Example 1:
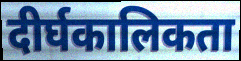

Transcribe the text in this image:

दीर्घकालिकता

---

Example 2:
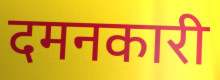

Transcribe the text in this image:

दमनकारी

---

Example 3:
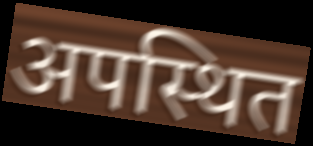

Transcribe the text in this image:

अपस्थित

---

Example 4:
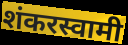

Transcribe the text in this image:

शंकरस्वामी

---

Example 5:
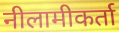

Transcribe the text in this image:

नीलामीकर्ता